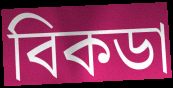
বিকডা